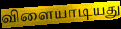
விளையாடியது